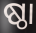
ଷ୍ଠା